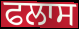
ਫਲਾਸ